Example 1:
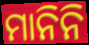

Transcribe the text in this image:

ମାନିନି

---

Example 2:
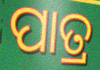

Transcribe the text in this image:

ପାତ୍ର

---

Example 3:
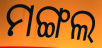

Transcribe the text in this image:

ମଙ୍ଗଲ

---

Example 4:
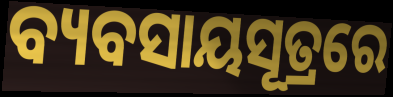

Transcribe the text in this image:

ବ୍ୟବସାୟସୂତ୍ରରେ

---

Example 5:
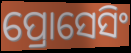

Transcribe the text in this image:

ପ୍ରୋସେସିଂ